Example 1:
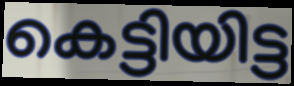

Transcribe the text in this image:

കെട്ടിയിട്ട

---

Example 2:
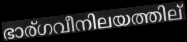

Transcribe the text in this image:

ഭാര്ഗവീനിലയത്തില്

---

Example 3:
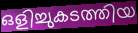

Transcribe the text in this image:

ഒളിച്ചുകടത്തിയ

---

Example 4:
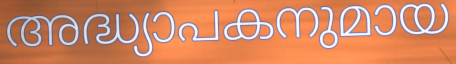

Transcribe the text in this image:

അദ്ധ്യാപകനുമായ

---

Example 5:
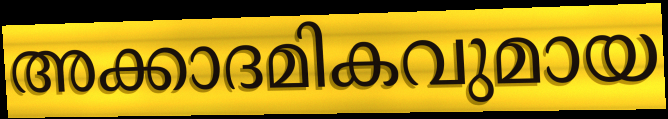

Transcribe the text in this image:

അക്കാദമികവുമായ